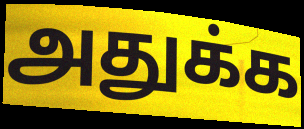
அதுக்க